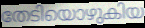
തേടിയൊഴുകിയ